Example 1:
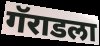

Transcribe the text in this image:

गॅराडला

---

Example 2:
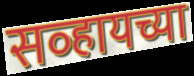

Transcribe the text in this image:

सव्हायच्या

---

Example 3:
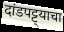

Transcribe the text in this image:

दांडपट्ट्याचा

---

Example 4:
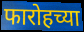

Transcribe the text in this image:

फारोहच्या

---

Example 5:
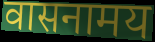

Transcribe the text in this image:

वासनामय